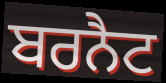
ਬਰਨੈਟ